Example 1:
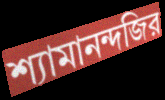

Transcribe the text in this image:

শ্যামানন্দজির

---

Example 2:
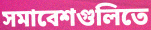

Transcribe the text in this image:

সমাবেশগুলিতে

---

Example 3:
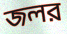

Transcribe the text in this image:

জলর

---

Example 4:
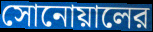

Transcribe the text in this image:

সোনোয়ালের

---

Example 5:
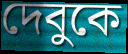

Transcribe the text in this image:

দেবুকে